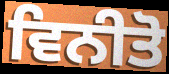
ਵਿਨੀਤੋ